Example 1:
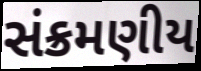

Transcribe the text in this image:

સંક્રમણીય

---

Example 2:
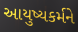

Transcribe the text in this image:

આયુષ્યકર્મને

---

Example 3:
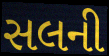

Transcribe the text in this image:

સલની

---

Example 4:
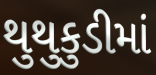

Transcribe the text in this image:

થુથુકુડીમાં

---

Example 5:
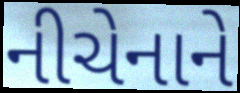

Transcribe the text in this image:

નીચેનાને